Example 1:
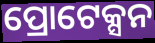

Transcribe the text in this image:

ପ୍ରୋଟେକ୍ସନ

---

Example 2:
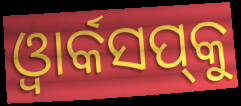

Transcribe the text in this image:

ଓ୍ୱାର୍କସପ୍‌କୁ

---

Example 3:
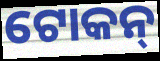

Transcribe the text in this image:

ଟୋକନ୍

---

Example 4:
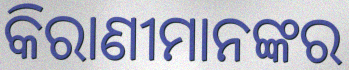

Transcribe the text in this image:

କିରାଣୀମାନଙ୍କର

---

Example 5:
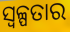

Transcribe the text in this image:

ସ୍ଵଳ୍ପତାର